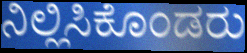
ನಿಲ್ಲಿಸಿಕೊಂಡರು